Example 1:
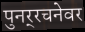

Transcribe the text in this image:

पुनर्रचनेवर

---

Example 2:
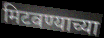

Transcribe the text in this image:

मिटवण्याच्या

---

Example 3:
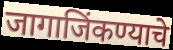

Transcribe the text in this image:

जागाजिंकण्याचे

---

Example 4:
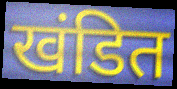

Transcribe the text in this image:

खंडित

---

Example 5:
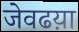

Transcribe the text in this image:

जेवढय़ा